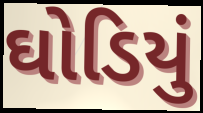
ઘોડિયું